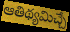
ఆతిథ్యమిచ్చే